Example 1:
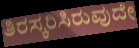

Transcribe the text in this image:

ತಿರಸ್ಕರಿಸಿರುವುದೇ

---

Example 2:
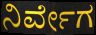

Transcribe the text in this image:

ನಿರ್ವೇಗ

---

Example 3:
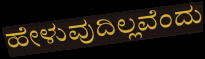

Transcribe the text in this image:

ಹೇಳುವುದಿಲ್ಲವೆಂದು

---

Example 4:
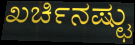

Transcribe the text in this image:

ಖರ್ಚಿನಷ್ಟು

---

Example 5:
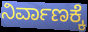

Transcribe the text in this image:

ನಿರ್ವಾಣಕ್ಕೆ